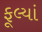
ફૂલ્યાં